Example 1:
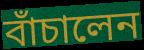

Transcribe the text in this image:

বাঁচালেন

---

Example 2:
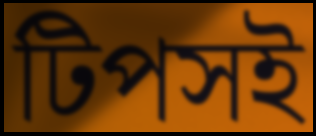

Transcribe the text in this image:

টিপসই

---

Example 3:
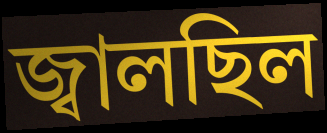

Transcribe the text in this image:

জ্বালছিল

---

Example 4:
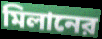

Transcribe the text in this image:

মিলানের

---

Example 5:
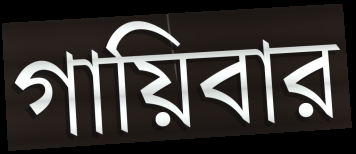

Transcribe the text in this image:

গায়িবার